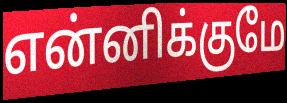
என்னிக்குமே